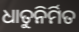
ଧାତୁନିର୍ମିତ